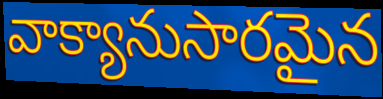
వాక్యానుసారమైన